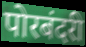
पोरबंदरी